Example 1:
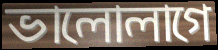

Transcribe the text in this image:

ভালোলাগে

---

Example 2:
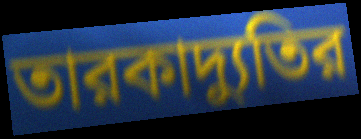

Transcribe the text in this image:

তারকাদ্যুতির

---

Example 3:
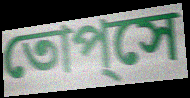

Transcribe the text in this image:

তোপ্‌সে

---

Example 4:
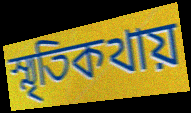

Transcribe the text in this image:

স্মৃতিকথায়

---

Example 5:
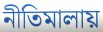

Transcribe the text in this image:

নীতিমালায়